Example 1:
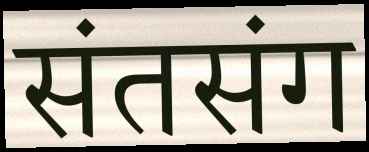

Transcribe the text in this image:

संतसंग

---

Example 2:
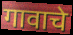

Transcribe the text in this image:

गावाचे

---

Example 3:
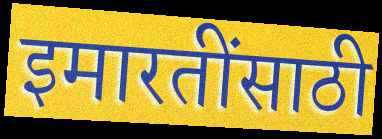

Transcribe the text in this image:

इमारतींसाठी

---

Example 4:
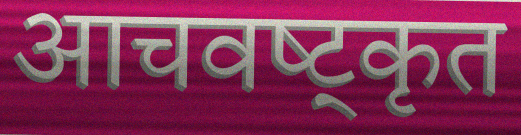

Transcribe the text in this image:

आचवष्ट्कृत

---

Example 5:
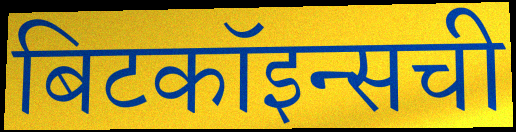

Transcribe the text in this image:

बिटकॉइन्सची